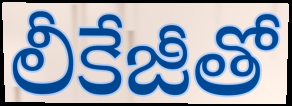
లీకేజీతో